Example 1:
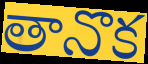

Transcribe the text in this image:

తానొక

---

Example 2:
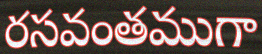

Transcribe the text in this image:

రసవంతముగా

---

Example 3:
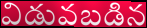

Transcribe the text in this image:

విడువబడిన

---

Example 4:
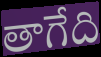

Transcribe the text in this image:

తాగేది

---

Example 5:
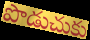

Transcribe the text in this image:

పొడుచుకు